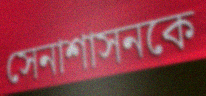
সেনাশাসনকে